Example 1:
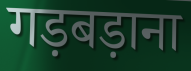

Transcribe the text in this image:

गड़बड़ाना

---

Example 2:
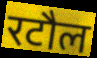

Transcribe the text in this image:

रटौल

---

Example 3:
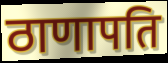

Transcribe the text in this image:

ठाणापति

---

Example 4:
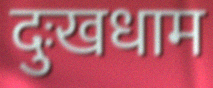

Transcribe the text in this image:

दुःखधाम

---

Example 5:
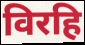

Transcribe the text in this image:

विरहि